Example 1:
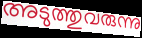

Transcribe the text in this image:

അടുത്തുവരുന്നു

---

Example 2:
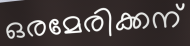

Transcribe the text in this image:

ഒരമേരിക്കന്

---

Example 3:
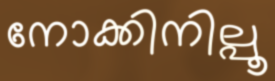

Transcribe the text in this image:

നോക്കിനില്പൂ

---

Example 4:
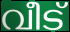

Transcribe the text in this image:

വീട്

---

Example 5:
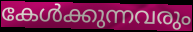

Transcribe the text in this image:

കേൾക്കുന്നവരും